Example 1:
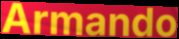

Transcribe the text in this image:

Armando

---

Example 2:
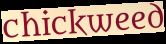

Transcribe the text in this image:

chickweed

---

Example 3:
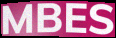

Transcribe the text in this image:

MBES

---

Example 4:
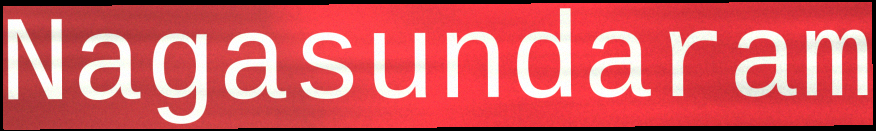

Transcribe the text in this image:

Nagasundaram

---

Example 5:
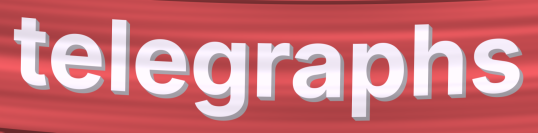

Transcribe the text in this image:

telegraphs